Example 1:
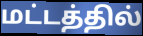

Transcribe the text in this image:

மட்டத்தில்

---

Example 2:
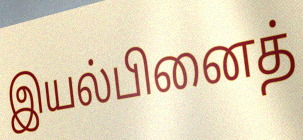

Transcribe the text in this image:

இயல்பினைத்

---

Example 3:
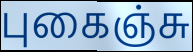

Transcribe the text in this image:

புகைஞ்சு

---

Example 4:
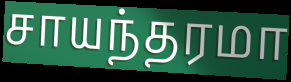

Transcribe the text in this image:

சாயந்தரமா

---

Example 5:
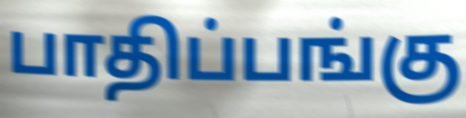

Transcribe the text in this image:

பாதிப்பங்கு